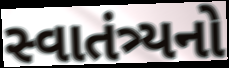
સ્વાતંત્ર્યનો